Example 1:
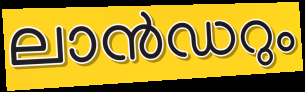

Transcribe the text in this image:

ലാൻഡറും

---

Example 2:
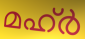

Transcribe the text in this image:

മഹ്ർ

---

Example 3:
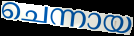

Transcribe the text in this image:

ചെന്നായ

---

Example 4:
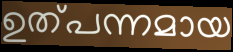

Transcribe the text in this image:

ഉത്പന്നമായ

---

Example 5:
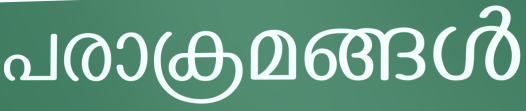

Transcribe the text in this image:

പരാക്രമങ്ങൾ